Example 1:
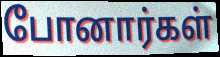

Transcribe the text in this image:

போனார்கள்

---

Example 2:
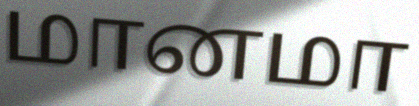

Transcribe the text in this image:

மானமா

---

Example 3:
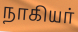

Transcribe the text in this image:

நாகியர்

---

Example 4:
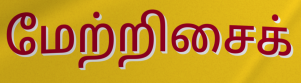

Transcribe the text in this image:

மேற்றிசைக்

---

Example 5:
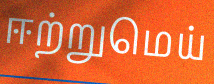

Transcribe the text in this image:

ஈற்றுமெய்